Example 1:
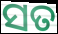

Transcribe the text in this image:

ସତ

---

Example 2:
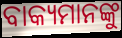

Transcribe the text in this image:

ବାକ୍ୟମାନଙ୍କୁ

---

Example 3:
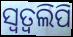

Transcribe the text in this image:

ସ୍ୱତ୍ୱଲିପି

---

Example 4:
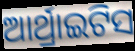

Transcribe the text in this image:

ଆର୍ଥ୍ରାଇଟିସ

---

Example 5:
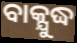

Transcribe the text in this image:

ବାକ୍ଯୁଦ୍ଧ